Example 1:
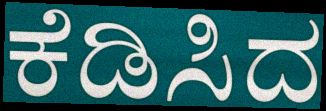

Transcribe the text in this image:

ಕೆಡಿಸಿದ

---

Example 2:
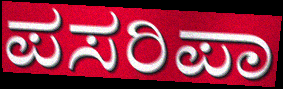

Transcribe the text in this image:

ಪಸರಿಪಾ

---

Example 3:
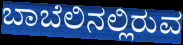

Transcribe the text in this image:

ಬಾಬೆಲಿನಲ್ಲಿರುವ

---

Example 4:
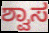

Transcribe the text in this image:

ಶ್ವಾಸ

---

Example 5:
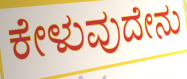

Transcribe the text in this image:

ಕೇಳುವುದೇನು